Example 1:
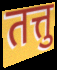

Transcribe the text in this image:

तत्तु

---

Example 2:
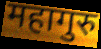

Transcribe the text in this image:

महागुरु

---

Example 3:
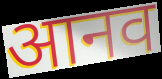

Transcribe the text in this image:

आनव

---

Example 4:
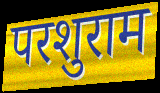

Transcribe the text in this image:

परशुराम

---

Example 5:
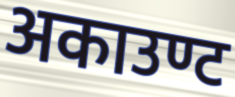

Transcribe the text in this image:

अकाउण्ट